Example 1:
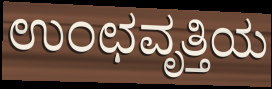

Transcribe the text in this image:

ಉಂಛವೃತ್ತಿಯ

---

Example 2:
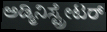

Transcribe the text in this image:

ಅಡ್ಮಿನಿಸ್ಟ್ರೇಟರ್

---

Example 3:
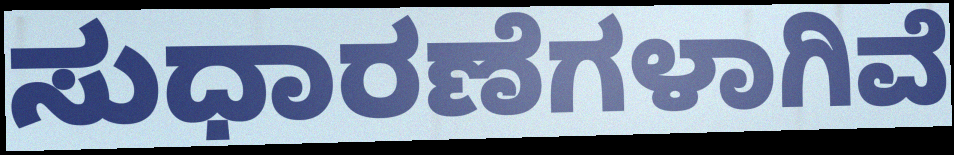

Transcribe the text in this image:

ಸುಧಾರಣೆಗಳಾಗಿವೆ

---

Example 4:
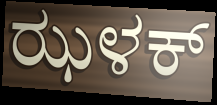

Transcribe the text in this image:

ಝಳಕ್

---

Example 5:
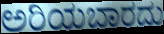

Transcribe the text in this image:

ಅರಿಯಬಾರದು